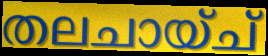
തലചായ്ച്